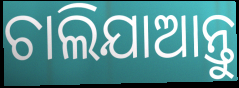
ଚାଲିଯାଆନ୍ତୁ